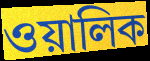
ওয়ালিক